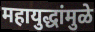
महायुद्धांमुळे